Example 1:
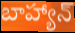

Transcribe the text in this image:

బాహ్యాన్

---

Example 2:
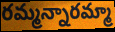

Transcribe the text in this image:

రమ్మన్నారమ్మా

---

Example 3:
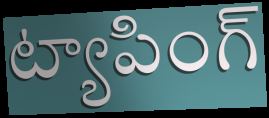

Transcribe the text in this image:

ట్యాపింగ్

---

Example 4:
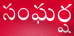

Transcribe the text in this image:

సంఘర్ష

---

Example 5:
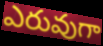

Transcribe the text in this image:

ఎరువుగా